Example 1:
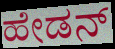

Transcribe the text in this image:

ಹೇಡನ್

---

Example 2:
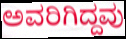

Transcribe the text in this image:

ಅವರಿಗಿದ್ದವು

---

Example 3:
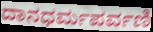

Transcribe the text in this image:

ದಾನಧರ್ಮಪರ್ವಣಿ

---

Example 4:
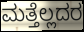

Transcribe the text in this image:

ಮತ್ತೆಲ್ಲದರ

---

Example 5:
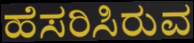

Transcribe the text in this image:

ಹೆಸರಿಸಿರುವ